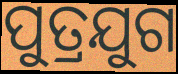
ପୁତ୍ରଯୁଗ